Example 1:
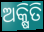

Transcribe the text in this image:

ଅକ୍ଷିତି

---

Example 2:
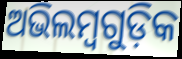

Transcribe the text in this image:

ଅଭିଲମ୍ବଗୁଡ଼ିକ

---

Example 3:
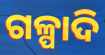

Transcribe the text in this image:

ଗଳ୍ପାଦି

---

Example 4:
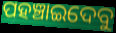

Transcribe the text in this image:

ପହଞ୍ଚାଇଦେବୁ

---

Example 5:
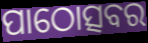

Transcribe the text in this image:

ପାଠୋତ୍ସବର